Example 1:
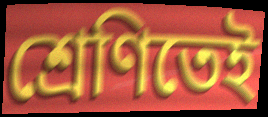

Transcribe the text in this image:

শ্রেণিতেই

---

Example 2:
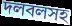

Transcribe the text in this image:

দলবলসহ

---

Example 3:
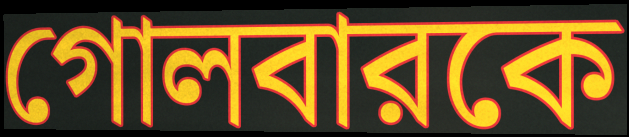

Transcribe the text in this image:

গোলবারকে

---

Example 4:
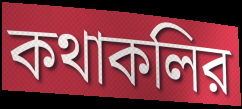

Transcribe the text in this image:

কথাকলির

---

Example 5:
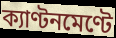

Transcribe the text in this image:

ক্যাণ্টনমেণ্টে